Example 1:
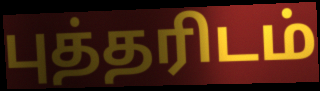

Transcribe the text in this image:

புத்தரிடம்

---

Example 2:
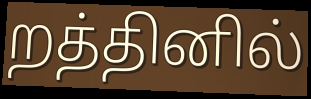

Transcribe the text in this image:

றத்தினில்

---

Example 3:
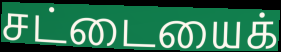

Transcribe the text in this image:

சட்டையைக்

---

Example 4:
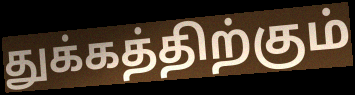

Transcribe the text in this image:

துக்கத்திற்கும்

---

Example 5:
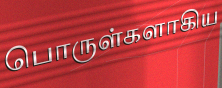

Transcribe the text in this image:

பொருள்களாகிய